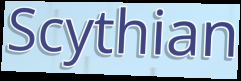
Scythian